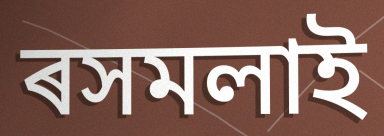
ৰসমলাই